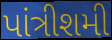
પાંત્રીશમી